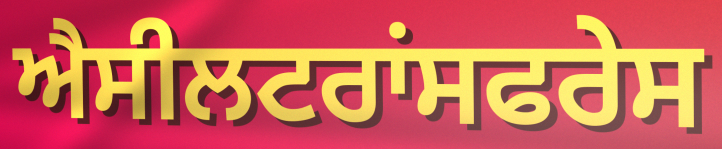
ਐਸੀਲਟਰਾਂਸਫਰੇਸ